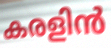
കരളിൻ